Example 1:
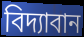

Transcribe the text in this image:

বিদ্যাবান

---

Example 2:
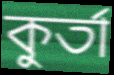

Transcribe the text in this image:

কুৰ্তা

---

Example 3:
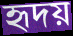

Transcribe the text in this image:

হৃদয়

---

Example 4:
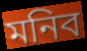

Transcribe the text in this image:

মনিব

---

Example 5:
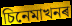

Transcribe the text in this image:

চিনেমাখনৰ